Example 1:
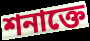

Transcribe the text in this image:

শনাক্তে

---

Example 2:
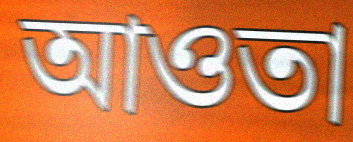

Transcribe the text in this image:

আওতা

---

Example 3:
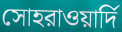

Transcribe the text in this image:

সোহরাওয়ার্দি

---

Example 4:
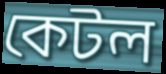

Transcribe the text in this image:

কেটল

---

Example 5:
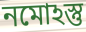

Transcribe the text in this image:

নমোঽস্তু